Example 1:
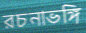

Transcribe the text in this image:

রচনাভঙ্গি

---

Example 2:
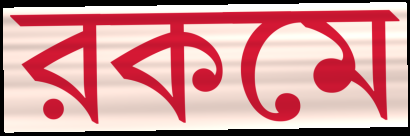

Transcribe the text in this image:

রকমে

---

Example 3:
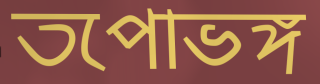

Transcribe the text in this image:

তপোভঙ্গ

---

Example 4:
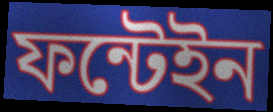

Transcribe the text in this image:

ফন্টেইন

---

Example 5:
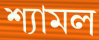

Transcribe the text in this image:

শ্যামল